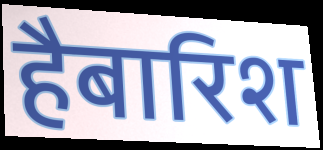
हैबारिश